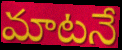
మాటనే